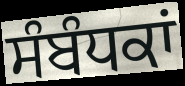
ਸੰਬੰਧਕਾਂ